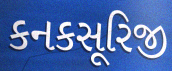
કનકસૂરિજી